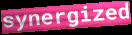
synergized